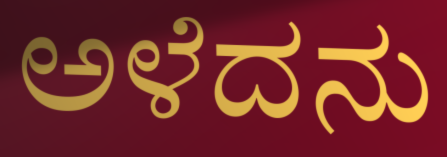
ಅಳೆದನು